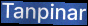
Tanpinar